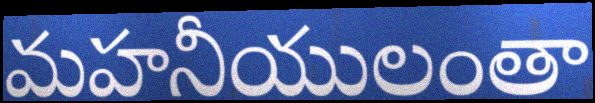
మహనీయులంతా